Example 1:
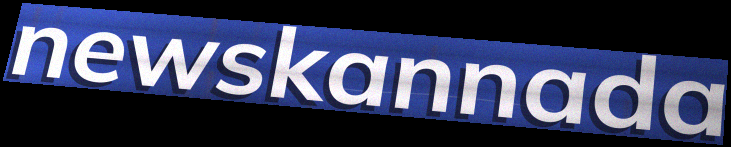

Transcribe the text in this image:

newskannada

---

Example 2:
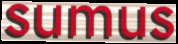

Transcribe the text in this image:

sumus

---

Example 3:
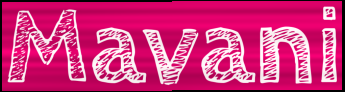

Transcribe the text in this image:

Mavani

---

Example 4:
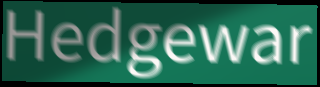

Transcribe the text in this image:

Hedgewar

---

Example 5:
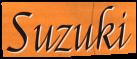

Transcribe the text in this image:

Suzuki